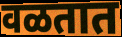
वळतात